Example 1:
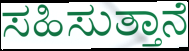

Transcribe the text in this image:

ಸಹಿಸುತ್ತಾನೆ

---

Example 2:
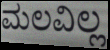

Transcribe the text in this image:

ಮಲವಿಲ್ಲ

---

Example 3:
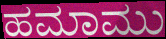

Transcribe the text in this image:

ಹಮಾಮು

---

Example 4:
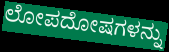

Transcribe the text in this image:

ಲೋಪದೋಷಗಳನ್ನು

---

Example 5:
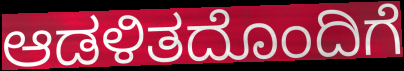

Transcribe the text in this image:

ಆಡಳಿತದೊಂದಿಗೆ